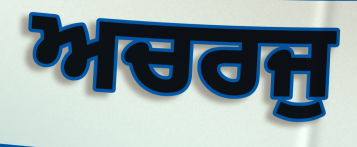
ਅਚਰਜੁ